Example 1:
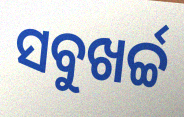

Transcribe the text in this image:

ସବୁଖର୍ଚ୍ଚ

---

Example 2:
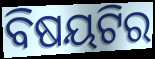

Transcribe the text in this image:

ବିଷୟଟିର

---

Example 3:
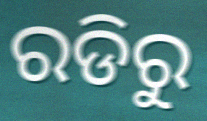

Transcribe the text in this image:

ରଡିରୁ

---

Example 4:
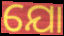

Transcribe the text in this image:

ଯୋ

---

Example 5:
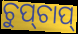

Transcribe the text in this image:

ଚୁପ୍‌ଚାପ୍